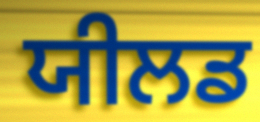
ਯੀਲਡ